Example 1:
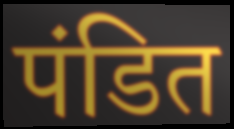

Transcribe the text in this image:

पंडित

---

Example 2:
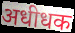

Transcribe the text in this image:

अधीधक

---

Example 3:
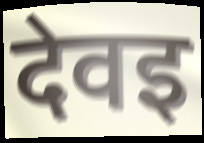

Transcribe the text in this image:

देवइ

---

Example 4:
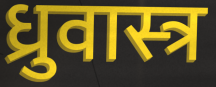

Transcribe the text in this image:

ध्रुवास्त्र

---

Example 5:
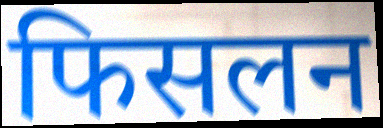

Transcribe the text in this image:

फिसलन